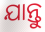
ଯାନ୍ତୁ